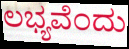
ಲಭ್ಯವೆಂದು